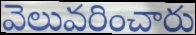
వెలువరించారు